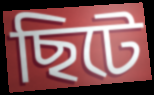
ছিটে